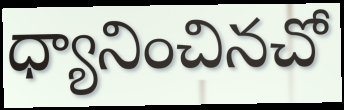
ధ్యానించినచో